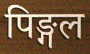
पिङ्गल